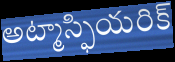
అట్మాస్ఫియరిక్